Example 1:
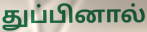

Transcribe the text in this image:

துப்பினால்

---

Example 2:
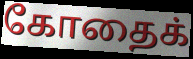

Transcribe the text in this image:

கோதைக்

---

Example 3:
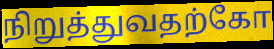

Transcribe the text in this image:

நிறுத்துவதற்கோ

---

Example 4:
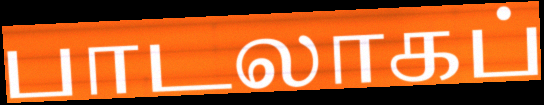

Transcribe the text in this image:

பாடலாகப்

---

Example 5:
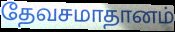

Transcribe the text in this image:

தேவசமாதானம்